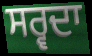
ਸਰ੍ਵਦਾ